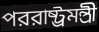
পররাষ্ট্রমন্ত্রী